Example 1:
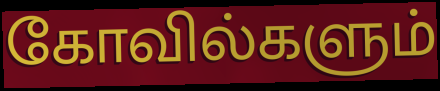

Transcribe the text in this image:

கோவில்களும்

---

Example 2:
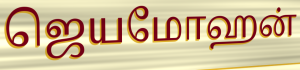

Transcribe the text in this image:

ஜெயமோஹன்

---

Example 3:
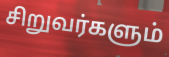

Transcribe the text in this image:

சிறுவர்களும்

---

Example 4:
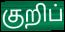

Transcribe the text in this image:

குறிப்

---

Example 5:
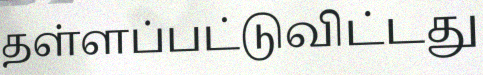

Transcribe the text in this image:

தள்ளப்பட்டுவிட்டது